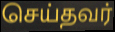
செய்தவர்